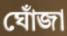
ঘোঁজা